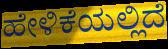
ಹೇಳಿಕೆಯಲ್ಲಿದೆ